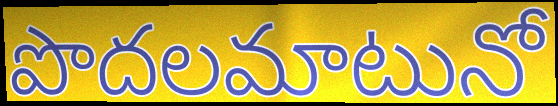
పొదలమాటునో